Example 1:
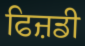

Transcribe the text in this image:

ਫਿਜ਼ਡੀ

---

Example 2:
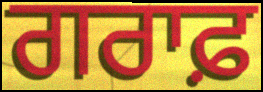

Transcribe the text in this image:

ਗਰਾਫ਼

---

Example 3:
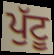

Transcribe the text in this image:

ਪੁੱਟੂ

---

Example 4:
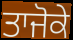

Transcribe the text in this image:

ਤਾਜੋਕੇ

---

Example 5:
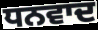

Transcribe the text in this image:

ਧਨਵਾਦ